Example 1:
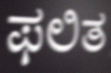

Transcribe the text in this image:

ಫಲಿತ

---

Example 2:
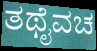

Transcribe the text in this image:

ತಥೈವಚ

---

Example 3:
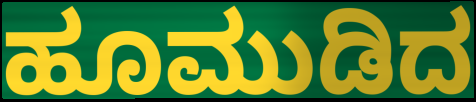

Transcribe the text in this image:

ಹೂಮುಡಿದ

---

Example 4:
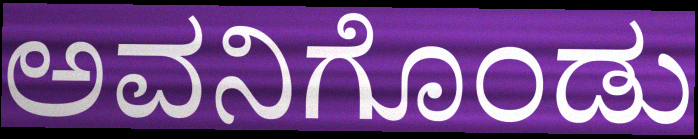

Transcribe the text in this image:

ಅವನಿಗೊಂಡು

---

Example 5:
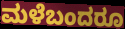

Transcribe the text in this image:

ಮಳೆಬಂದರೂ